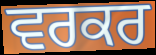
ਵਰਕਰ